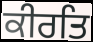
ਕੀਰਤਿ